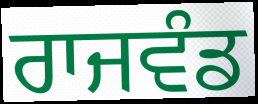
ਰਾਜਵੰਡ